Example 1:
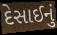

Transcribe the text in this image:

દેસાઈનું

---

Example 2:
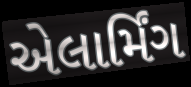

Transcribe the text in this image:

એલાર્મિંગ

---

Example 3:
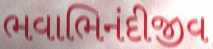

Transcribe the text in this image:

ભવાભિનંદીજીવ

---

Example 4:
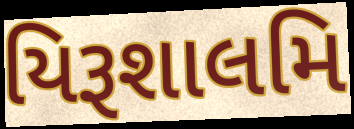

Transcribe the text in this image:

યિરૂશાલમિ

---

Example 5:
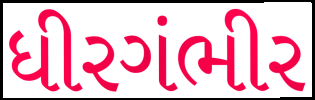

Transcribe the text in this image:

ધીરગંભીર